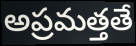
అప్రమత్తతే